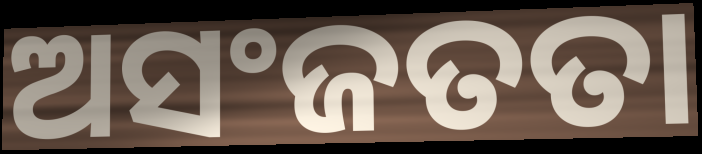
ଅସଂଜତତା